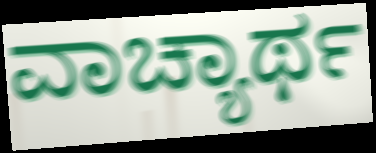
ವಾಚ್ಯಾರ್ಥ